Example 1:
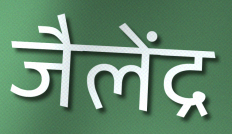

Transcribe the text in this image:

जैलेंद्र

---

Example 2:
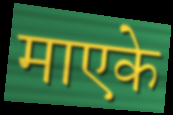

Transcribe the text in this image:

माएके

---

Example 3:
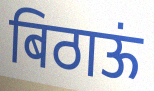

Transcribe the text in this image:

बिठाऊं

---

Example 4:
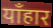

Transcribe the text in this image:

याँहार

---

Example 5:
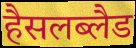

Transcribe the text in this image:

हैसलब्लैड